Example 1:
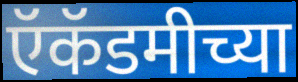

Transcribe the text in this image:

ऍकॅडमीच्या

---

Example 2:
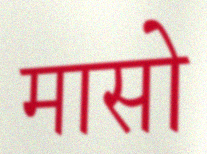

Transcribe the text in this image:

मासो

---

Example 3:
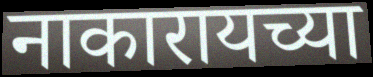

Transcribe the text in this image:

नाकारायच्या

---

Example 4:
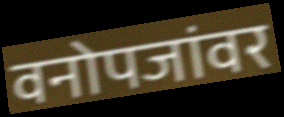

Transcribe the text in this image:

वनोपजांवर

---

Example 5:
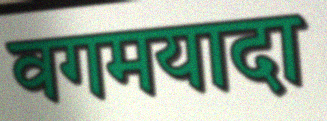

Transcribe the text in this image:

वगमयादा